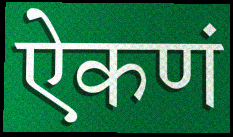
ऐकणं